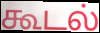
கூடல்